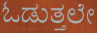
ಓಡುತ್ತಲೇ